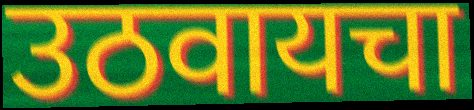
उठवायचा